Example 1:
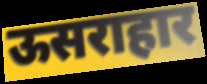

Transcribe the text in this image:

ऊसराहार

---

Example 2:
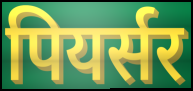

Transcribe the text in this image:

पियर्सर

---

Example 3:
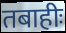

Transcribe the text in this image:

तबाहीः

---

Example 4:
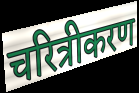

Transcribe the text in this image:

चरित्रीकरण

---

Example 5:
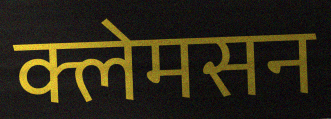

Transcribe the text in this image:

क्लेमसन